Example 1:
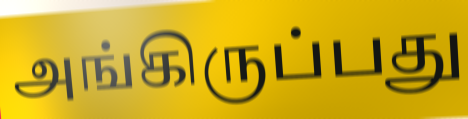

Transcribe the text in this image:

அங்கிருப்பது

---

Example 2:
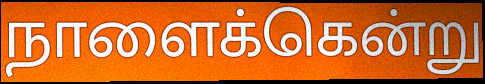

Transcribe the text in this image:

நாளைக்கென்று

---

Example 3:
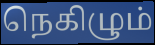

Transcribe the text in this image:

நெகிழும்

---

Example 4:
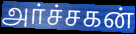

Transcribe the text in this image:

அர்ச்சகன்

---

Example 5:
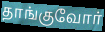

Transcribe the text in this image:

தாங்குவோர்